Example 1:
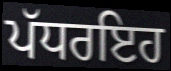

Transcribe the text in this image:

ਪੱਧਰਇਹ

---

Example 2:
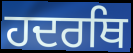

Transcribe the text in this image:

ਹਦਰਥਿ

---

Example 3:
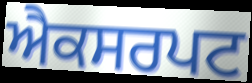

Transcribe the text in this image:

ਐਕਸਰਪਟ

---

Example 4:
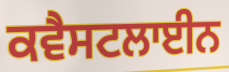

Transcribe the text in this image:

ਕਵੈਸਟਲਾਈਨ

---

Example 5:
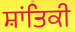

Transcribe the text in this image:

ਸ਼ਾਂਤਿਕੀ